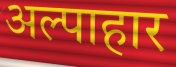
अल्पाहार